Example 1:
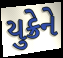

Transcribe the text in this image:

યુક્રેને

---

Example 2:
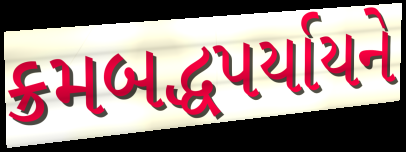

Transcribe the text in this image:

ક્રમબદ્ધપર્યાયને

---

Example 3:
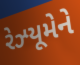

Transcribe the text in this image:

રેઝ્યૂમેને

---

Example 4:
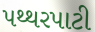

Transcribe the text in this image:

પથ્થરપાટી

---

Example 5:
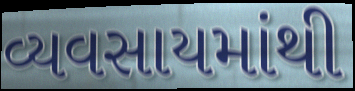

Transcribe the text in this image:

વ્યવસાયમાંથી